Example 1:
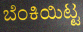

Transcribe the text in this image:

ಬೆಂಕಿಯಿಟ್ಟ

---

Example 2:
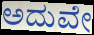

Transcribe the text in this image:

ಅದುವೇ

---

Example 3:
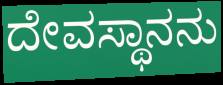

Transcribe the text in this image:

ದೇವಸ್ಥಾನನು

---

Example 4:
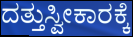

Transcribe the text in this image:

ದತ್ತುಸ್ವೀಕಾರಕ್ಕೆ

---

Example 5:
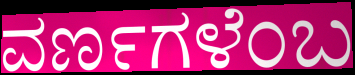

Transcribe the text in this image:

ವರ್ಣಗಳೆಂಬ